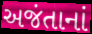
અજંતાનાં